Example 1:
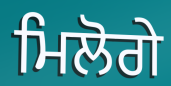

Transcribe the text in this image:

ਮਿਲੋਗੇ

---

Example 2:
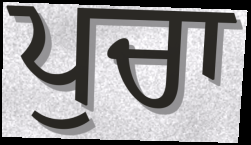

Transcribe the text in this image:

ਪੁਚਾ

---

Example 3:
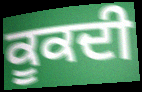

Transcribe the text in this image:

ਕੂਕਦੀ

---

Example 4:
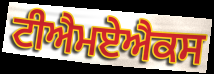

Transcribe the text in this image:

ਟੀਐਮਏਐਕਸ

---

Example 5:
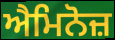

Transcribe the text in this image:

ਐਮਿਨੋਜ਼